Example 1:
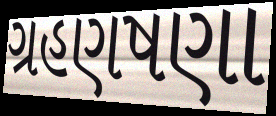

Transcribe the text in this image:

ગ્રહણષણા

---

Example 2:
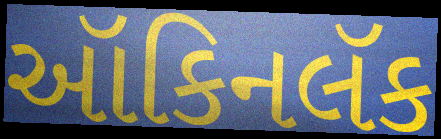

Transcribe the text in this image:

ઑકિનલૅક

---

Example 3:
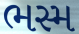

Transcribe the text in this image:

ભસ્મ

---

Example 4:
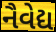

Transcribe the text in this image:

નૈવેદ્ય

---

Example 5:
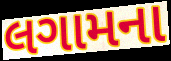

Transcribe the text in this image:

લગામના